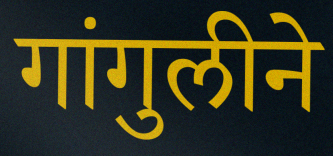
गांगुलीने